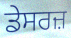
ਡੇਸਰਜ਼